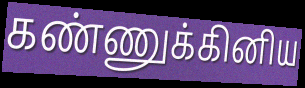
கண்ணுக்கினிய